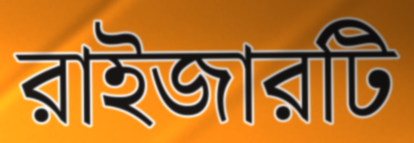
রাইজারটি